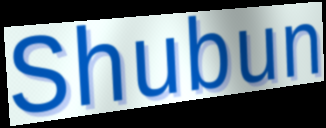
Shubun